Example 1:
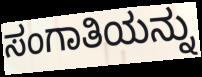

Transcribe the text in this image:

ಸಂಗಾತಿಯನ್ನು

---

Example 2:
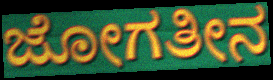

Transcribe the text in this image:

ಜೋಗತೀನ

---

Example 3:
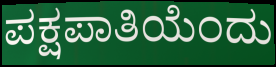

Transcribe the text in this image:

ಪಕ್ಷಪಾತಿಯೆಂದು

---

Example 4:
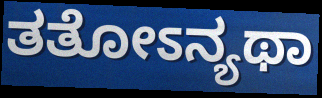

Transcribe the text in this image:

ತತೋಽನ್ಯಥಾ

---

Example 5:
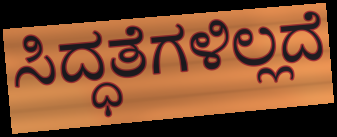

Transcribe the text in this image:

ಸಿದ್ಧತೆಗಳಿಲ್ಲದೆ